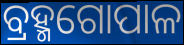
ବ୍ରହ୍ମଗୋପାଳ